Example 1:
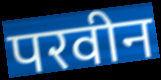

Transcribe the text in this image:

परवीन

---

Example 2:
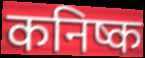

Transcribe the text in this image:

कनिष्क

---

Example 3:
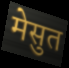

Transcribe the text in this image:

मेसुत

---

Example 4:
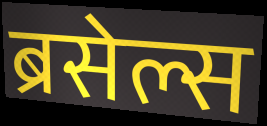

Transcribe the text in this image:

ब्रसेल्स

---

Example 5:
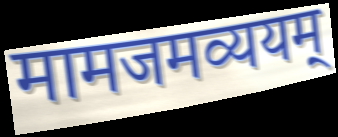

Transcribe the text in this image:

मामजमव्ययम्